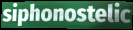
siphonostelic